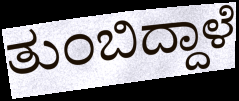
ತುಂಬಿದ್ದಾಳೆ